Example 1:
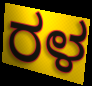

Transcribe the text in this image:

ರಳ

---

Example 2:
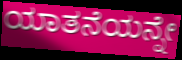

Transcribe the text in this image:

ಯಾತನೆಯನ್ನೇ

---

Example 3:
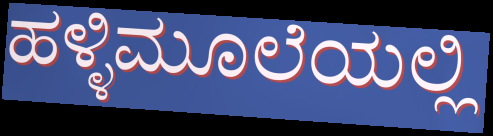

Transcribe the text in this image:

ಹಳ್ಳಿಮೂಲೆಯಲ್ಲಿ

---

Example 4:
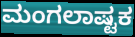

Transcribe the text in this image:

ಮಂಗಲಾಷ್ಟಕ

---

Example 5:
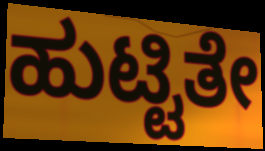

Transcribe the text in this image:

ಹುಟ್ಟಿತೇ